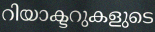
റിയാക്ടറുകളുടെ